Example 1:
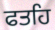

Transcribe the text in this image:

ਫਤਹਿ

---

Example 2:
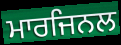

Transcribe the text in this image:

ਮਾਰਜਿਨਲ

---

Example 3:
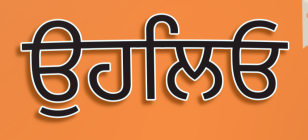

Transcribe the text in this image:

ਉਹਲਿਓ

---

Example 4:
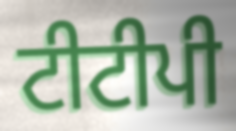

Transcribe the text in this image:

ਟੀਟੀਪੀ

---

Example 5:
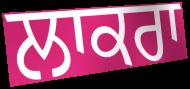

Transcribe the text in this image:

ਲਾਕਰਾ